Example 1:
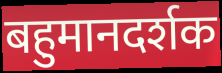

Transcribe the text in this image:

बहुमानदर्शक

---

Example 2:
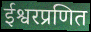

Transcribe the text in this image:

ईश्वरप्रणित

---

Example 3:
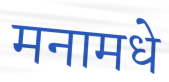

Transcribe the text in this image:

मनामधे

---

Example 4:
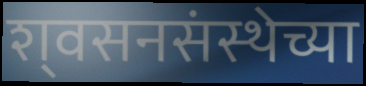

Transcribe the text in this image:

श्वसनसंस्थेच्या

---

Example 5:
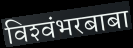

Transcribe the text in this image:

विश्वंभरबाबा